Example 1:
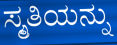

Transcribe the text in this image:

ಸ್ಮೃತಿಯನ್ನು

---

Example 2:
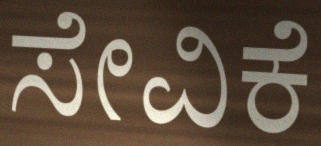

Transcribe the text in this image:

ಸೇವಿಕೆ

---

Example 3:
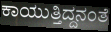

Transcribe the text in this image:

ಕಾಯುತ್ತಿದ್ದನಂತೆ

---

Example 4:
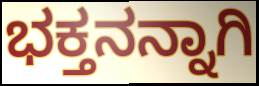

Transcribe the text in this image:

ಭಕ್ತನನ್ನಾಗಿ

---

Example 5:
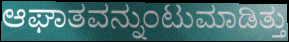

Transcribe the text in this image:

ಆಘಾತವನ್ನುಂಟುಮಾಡಿತ್ತು